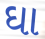
ઘા